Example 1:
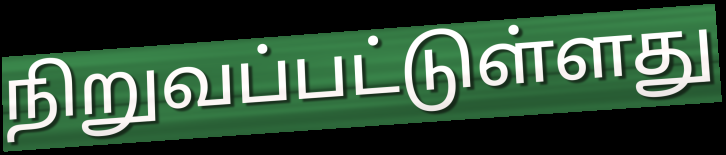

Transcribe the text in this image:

நிறுவப்பட்டுள்ளது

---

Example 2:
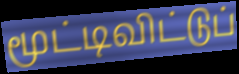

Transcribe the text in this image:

மூட்டிவிட்டுப்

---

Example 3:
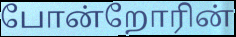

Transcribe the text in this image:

போன்றோரின்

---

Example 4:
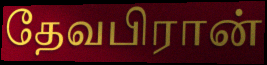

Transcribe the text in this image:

தேவபிரான்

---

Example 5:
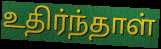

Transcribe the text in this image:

உதிர்ந்தாள்